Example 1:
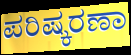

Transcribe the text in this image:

ಪರಿಷ್ಕರಣಾ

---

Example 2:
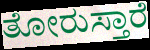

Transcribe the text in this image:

ತೋರುಸ್ತಾರೆ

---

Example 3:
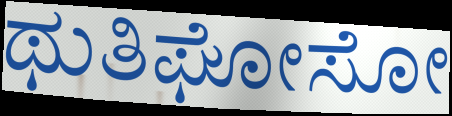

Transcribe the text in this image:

ಥುತಿಘೋಸೋ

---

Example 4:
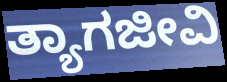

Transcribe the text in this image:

ತ್ಯಾಗಜೀವಿ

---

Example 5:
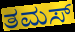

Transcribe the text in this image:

ತಮಸ್